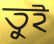
তুই